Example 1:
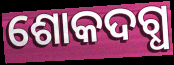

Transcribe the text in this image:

ଶୋକଦଗ୍ଧ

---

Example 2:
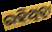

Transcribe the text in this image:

ରହିଥିତ୍ବା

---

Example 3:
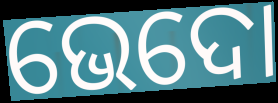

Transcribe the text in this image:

ଭେଦୋ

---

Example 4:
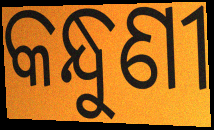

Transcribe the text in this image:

କନ୍ଧୁଣୀ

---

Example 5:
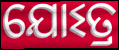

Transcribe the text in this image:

ଯୋଽତ୍ର